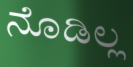
ನೊಡಿಲ್ಲ